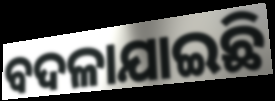
ବଦଳାଯାଇଛି